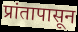
प्रांतापासून